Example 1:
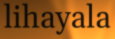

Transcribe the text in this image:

lihayala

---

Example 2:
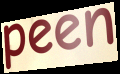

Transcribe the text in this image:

peen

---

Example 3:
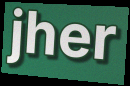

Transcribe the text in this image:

jher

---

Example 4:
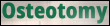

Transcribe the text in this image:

Osteotomy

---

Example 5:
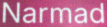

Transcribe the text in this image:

Narmad